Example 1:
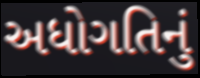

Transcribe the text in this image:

અધોગતિનું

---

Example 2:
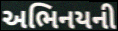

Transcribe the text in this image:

અભિનયની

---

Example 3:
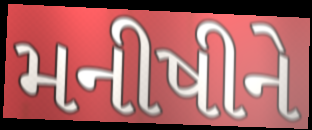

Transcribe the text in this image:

મનીષીને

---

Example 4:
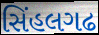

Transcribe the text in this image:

સિંહલગઢ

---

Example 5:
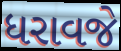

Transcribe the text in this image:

ધરાવજે